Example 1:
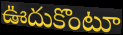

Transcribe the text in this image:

ఊదుకొంటూ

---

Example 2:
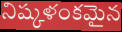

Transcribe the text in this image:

నిష్కళంకమైన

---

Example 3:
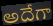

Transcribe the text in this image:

అదేగా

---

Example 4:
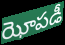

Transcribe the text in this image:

ఝోపడీ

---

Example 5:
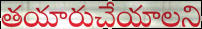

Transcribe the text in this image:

తయారుచేయాలని